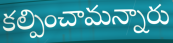
కల్పించామన్నారు